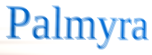
Palmyra